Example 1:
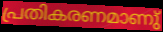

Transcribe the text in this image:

പ്രതികരണമാണു്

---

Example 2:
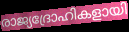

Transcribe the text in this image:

രാജ്യദ്രോഹികളായി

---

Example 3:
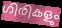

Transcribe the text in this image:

ഗിരികളും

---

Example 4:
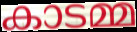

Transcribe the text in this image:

കാടമ്മ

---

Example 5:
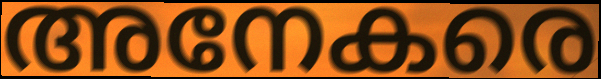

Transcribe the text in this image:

അനേകരെ